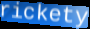
rickety